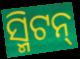
ସ୍ମିଟନ୍